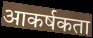
आकर्षकता